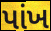
પાંખ